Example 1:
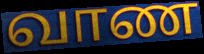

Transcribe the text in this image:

வாண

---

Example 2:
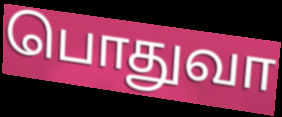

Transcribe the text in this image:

பொதுவா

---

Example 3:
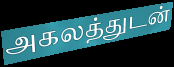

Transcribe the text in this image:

அகலத்துடன்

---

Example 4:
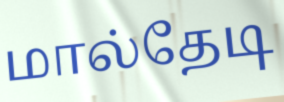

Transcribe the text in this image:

மால்தேடி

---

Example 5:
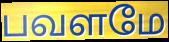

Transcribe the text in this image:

பவளமே